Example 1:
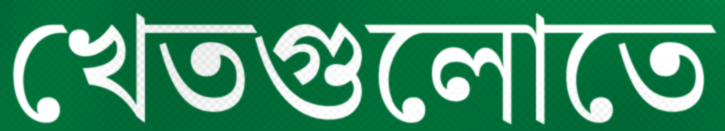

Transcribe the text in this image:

খেতগুলোতে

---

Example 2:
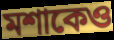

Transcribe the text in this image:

মশাকেও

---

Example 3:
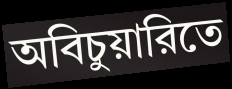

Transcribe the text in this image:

অবিচুয়ারিতে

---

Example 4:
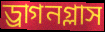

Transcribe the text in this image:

ড্রাগনগ্লাস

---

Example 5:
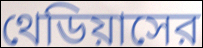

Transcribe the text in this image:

থেডিয়াসের